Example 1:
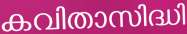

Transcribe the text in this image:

കവിതാസിദ്ധി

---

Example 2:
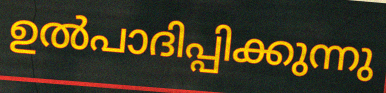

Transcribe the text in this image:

ഉൽപാദിപ്പിക്കുന്നു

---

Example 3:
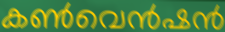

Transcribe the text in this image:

കൺവെൻഷൻ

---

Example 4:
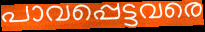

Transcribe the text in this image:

പാവപ്പെട്ടവരെ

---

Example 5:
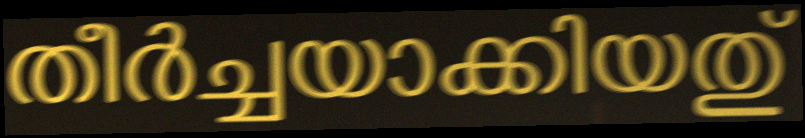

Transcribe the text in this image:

തീർച്ചയാക്കിയതു്